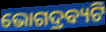
ଭୋଗଦ୍ରବ୍ୟଟି